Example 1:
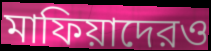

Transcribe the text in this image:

মাফিয়াদেরও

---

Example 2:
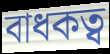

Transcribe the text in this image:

বাধকত্ব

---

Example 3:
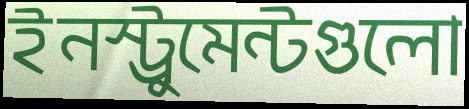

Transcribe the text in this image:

ইনস্ট্রুমেন্টগুলো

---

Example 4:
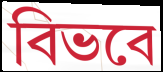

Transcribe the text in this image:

বিভবে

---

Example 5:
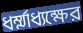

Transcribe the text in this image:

ধর্ম্মাধ্যক্ষের